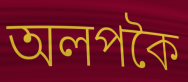
অলপকৈ